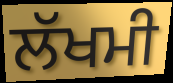
ਲੱਖਮੀ